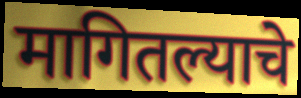
मागितल्याचे